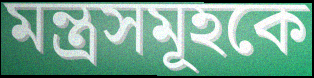
মন্ত্রসমূহকে